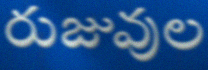
రుజువుల